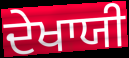
ਦੇਖਾਯੀ